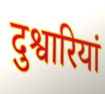
दुश्वारियां